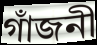
গাঁজনী